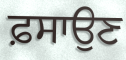
ਫ਼ਸਾਉਣ